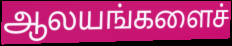
ஆலயங்களைச்